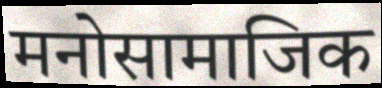
मनोसामाजिक